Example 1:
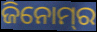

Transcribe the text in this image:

ଜିନୋମ୍‌ର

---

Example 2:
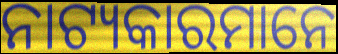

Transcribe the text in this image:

ନାଟ୍ୟକାରମାନେ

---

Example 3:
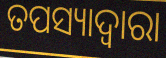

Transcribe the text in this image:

ତପସ୍ୟାଦ୍ୱାରା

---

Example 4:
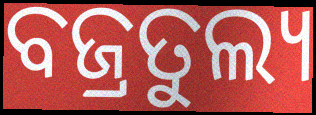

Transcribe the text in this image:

ବଜ୍ରତୁଲ୍ୟ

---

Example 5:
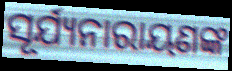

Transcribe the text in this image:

ସୂର୍ଯ୍ୟନାରାୟଣଙ୍କ